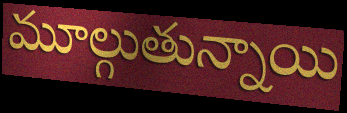
మూల్గుతున్నాయి